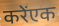
करेंएक